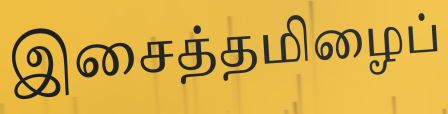
இசைத்தமிழைப்